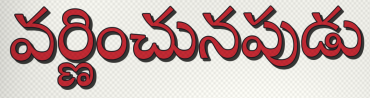
వర్ణించునపుడు